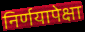
निर्णयापेक्षा